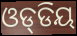
ଓଡ୍‌ଡିୟ